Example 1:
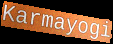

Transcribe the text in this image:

Karmayogi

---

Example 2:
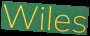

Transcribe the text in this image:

Wiles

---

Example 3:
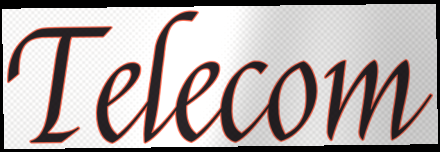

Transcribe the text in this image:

Telecom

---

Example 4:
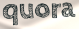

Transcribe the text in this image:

quora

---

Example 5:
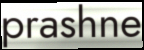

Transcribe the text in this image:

prashne